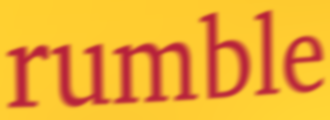
rumble